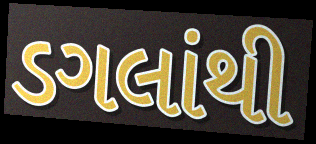
ડગલાંથી